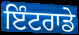
ਇੰਟਰਾਡੇ